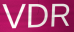
VDR